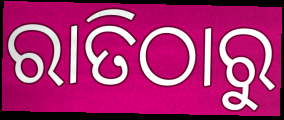
ରାତିଠାରୁ